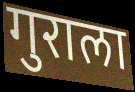
गुराला